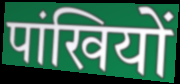
पांखियों